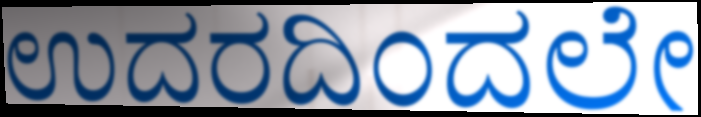
ಉದರದಿಂದಲೇ